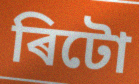
ৰিটো